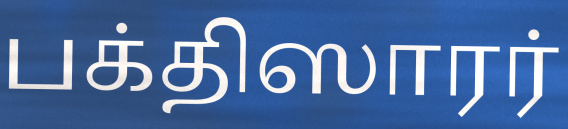
பக்திஸாரர்